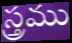
స్త్రము